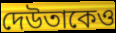
দেউতাকেও